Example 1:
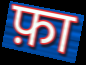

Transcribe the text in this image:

फ़ा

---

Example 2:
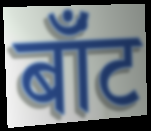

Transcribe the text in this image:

बांँट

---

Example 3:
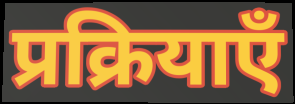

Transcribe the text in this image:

प्रक्रियाएँ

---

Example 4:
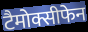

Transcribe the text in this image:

टैमोक्सीफेन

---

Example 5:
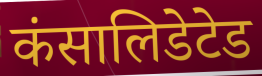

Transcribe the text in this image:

कंसालिडेटेड